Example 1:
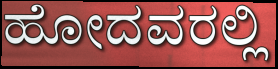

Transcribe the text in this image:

ಹೋದವರಲ್ಲಿ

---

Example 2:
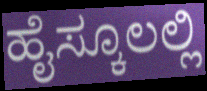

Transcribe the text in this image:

ಹೈಸ್ಕೂಲಲ್ಲಿ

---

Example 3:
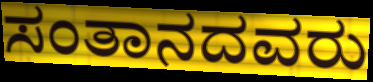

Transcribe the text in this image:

ಸಂತಾನದವರು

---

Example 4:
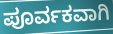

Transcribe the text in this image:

ಪೂರ್ವಕವಾಗಿ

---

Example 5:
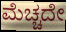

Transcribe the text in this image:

ಮೆಚ್ಚದೇ